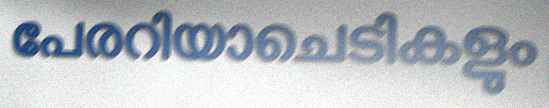
പേരറിയാചെടികളും